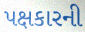
પક્ષકારની